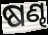
ଷଣ୍ଢ